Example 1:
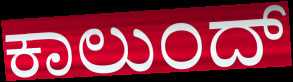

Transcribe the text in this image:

ಕಾಲುಂದ್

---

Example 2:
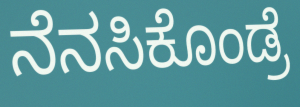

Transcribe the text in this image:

ನೆನಸಿಕೊಂಡ್ರೆ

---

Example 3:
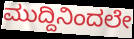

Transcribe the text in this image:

ಮುದ್ದಿನಿಂದಲೇ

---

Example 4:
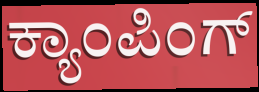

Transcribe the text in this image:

ಕ್ಯಾಂಪಿಂಗ್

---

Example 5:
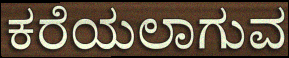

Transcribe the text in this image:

ಕರೆಯಲಾಗುವ